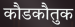
कौडकौतुक